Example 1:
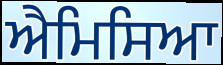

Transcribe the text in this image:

ਐਮਿਸਿਆ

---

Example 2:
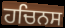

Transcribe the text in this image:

ਹਚਿਨਸ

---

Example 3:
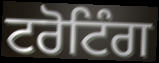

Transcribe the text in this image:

ਟਰੋਟਿੰਗ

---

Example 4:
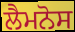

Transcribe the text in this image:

ਲੈਮਨੋਸ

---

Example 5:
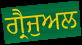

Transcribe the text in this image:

ਗ੍ਰੈਜੁਅਲ